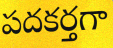
పదకర్తగా